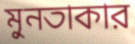
মুনতাকার